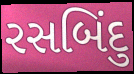
રસબિંદુ